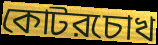
কোটরচোখ